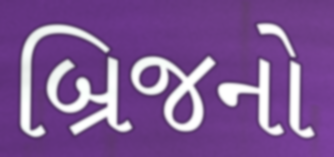
બ્રિજનો